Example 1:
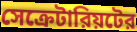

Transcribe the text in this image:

সেক্রেটারিয়টের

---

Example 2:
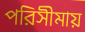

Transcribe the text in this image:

পরিসীমায়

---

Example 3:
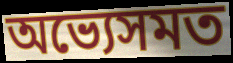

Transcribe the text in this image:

অভ্যেসমত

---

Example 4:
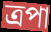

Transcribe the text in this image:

ত্রপা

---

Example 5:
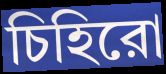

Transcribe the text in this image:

চিহিরো